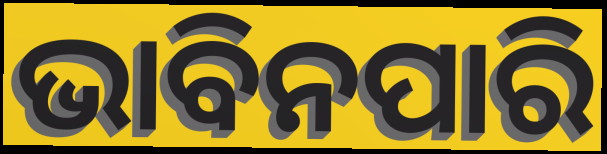
ଭାବିନପାରି